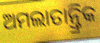
ଅମଲାତାନ୍ତ୍ରିକ